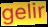
gelir